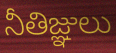
నీతిజ్ఞులు